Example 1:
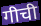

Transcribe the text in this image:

गीची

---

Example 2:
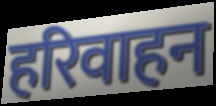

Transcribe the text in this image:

हरिवाहन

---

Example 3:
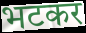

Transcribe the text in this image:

भटकर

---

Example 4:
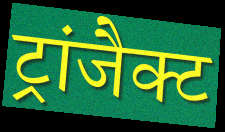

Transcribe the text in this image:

ट्रांजैक्ट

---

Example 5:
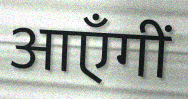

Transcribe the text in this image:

आएँगीं